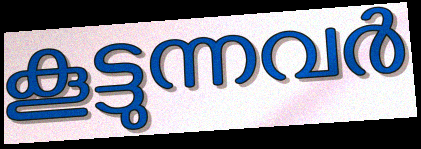
കൂട്ടുന്നവർ